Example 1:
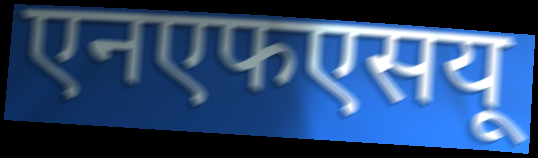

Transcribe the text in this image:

एनएफएसयू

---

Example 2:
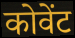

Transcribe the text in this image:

कोवेंट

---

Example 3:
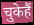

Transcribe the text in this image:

चुकेहैं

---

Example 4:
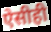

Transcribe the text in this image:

ऐसीही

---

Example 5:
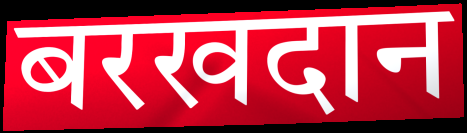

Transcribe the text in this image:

बरखदान